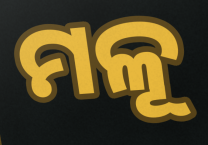
ମଳୂ